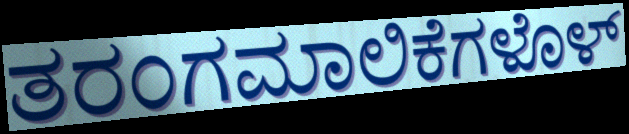
ತರಂಗಮಾಲಿಕೆಗಳೊಳ್